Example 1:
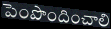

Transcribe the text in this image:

పెంపొందించాలి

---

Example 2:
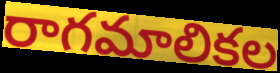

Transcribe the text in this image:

రాగమాలికల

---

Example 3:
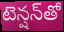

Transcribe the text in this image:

టెన్షన్‌తో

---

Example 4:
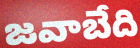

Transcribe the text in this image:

జవాబేది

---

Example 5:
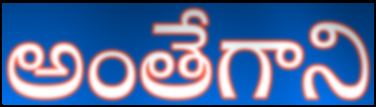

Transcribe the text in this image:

అంతేగాని